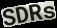
SDRs